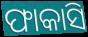
ଫାକାସି